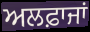
ਅਲਫ਼ਾਜਾਂ